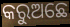
କରୁଅଛେ